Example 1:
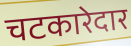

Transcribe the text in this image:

चटकारेदार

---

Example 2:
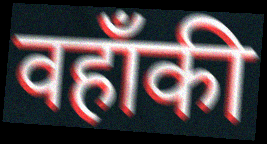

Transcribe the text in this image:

वहाँकी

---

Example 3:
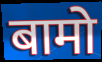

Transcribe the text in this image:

बामो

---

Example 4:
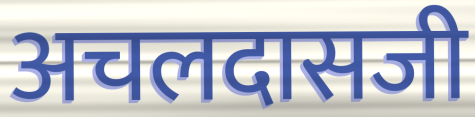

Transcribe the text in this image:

अचलदासजी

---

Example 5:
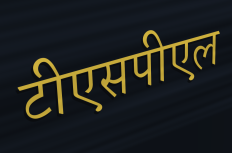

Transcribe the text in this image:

टीएसपीएल